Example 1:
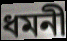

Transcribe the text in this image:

ধমনী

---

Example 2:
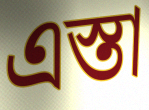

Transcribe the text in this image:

এস্তা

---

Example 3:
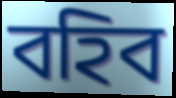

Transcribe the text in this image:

বহিব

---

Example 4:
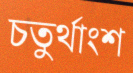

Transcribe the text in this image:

চতুর্থাংশ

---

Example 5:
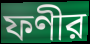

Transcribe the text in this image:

ফণীর